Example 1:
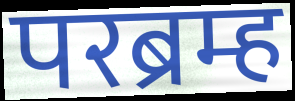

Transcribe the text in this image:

परब्रम्ह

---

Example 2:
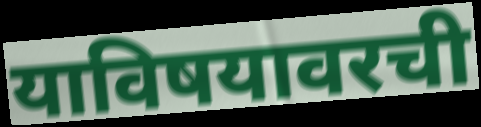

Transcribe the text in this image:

याविषयावरची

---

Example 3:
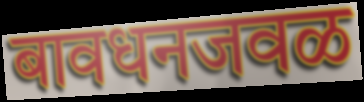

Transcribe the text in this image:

बावधनजवळ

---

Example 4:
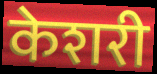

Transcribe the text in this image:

केशरी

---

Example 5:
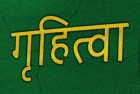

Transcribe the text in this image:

गृहित्वा